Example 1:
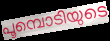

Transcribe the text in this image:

പൂമ്പൊടിയുടെ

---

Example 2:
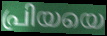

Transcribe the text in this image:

പ്രിയയെ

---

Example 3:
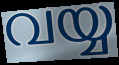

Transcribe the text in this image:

വയ്യ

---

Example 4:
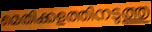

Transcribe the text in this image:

മെതിക്കളത്തിനടുത്തു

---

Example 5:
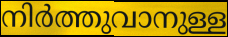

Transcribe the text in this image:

നിർത്തുവാനുള്ള